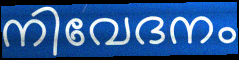
നിവേദനം